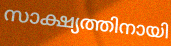
സാക്ഷ്യത്തിനായി